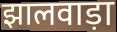
झालवाड़ा